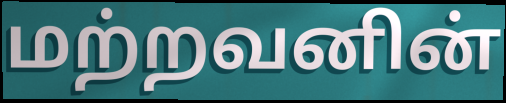
மற்றவனின்